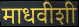
माधवीशी